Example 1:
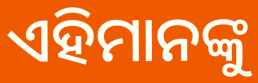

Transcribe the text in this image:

ଏହିମାନଙ୍କୁ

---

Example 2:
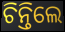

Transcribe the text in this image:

ଚିନ୍ତିଲେ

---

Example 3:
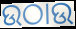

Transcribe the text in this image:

ଉଠାଉ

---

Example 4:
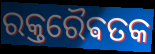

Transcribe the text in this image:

ରକ୍ତରୈଵତକ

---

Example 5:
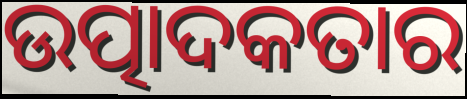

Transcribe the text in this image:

ଉତ୍ପାଦକତାର